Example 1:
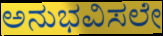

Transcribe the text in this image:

ಅನುಭವಿಸಲೇ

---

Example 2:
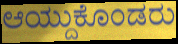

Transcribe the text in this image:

ಆಯ್ದುಕೊಂಡರು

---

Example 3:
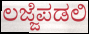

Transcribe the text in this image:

ಲಜ್ಜೆಪಡಲಿ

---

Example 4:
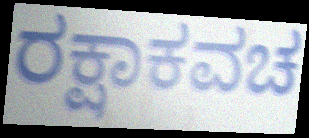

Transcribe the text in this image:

ರಕ್ಷಾಕವಚ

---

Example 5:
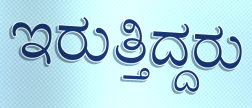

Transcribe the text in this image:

ಇರುತ್ತಿದ್ದರು